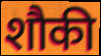
शौकी